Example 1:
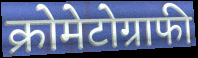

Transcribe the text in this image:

क्रोमेटोग्राफी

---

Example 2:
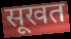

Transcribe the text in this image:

सूखत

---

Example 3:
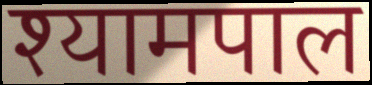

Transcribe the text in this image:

श्यामपाल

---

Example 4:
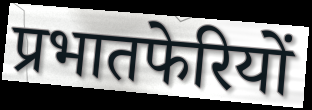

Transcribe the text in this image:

प्रभातफेरियों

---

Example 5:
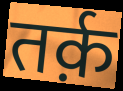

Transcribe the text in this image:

तर्क़